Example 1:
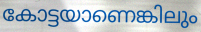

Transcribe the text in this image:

കോട്ടയാണെങ്കിലും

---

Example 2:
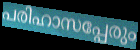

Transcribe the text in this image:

പരിഹാസപ്പേരും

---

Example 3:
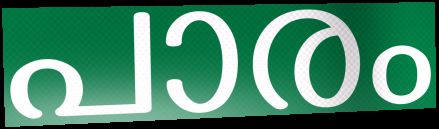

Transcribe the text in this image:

പാരം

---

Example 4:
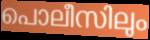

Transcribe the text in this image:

പൊലീസിലും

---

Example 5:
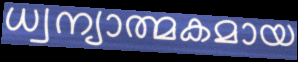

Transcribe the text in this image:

ധ്വന്യാത്മകമായ